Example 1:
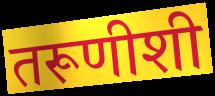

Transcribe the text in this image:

तरूणीशी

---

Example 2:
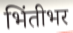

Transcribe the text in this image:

भिंतीभर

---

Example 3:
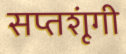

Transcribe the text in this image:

सप्तश्रृंगी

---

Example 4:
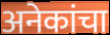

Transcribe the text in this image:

अनेकांचा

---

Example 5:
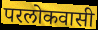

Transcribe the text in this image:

परलोकवासी